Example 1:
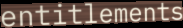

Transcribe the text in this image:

entitlements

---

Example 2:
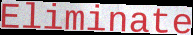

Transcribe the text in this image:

Eliminate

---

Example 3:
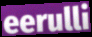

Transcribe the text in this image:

eerulli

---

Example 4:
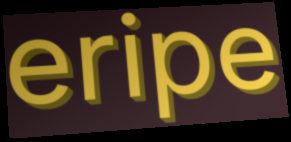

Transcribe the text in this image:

eripe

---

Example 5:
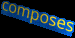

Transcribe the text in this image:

composes